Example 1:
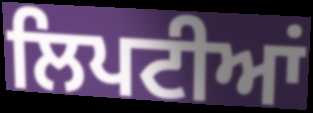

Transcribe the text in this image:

ਲਿਪਟੀਆਂ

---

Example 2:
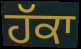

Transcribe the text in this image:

ਹੱਕਾ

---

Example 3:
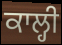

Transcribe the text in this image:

ਕਾਲ੍ਹ੍ਹੀ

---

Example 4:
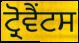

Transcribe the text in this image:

ਟ੍ਰੋਵੈਂਟਸ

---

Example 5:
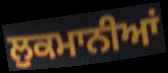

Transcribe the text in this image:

ਲੁਕਮਾਨੀਆਂ